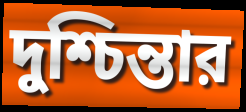
দুশ্চিন্তার